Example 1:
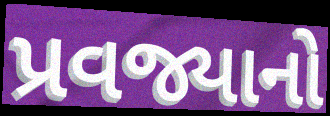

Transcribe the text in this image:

પ્રવજ્યાનો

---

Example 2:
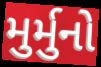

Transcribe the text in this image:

મુર્મુનો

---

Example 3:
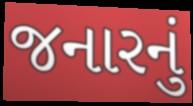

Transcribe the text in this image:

જનારનું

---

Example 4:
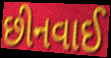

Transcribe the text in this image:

છીનવાઈ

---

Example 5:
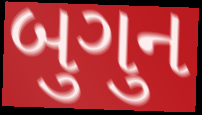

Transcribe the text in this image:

બુગુન